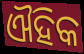
ଐହିକ